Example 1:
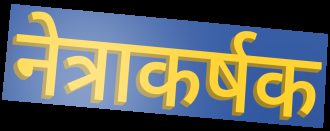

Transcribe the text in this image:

नेत्राकर्षक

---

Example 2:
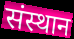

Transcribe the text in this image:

संस्थान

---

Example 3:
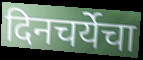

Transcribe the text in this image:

दिनचर्येचा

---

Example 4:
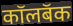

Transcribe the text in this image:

कॉलबॅक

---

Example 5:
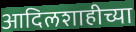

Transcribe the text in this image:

आदिलशाहीच्या